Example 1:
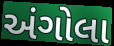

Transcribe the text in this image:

અંગોલા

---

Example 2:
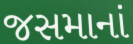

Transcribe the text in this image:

જસમાનાં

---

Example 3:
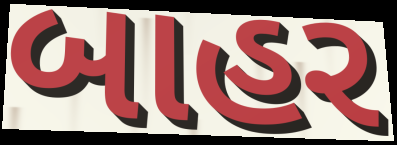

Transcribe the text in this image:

બાહર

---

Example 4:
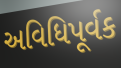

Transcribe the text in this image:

અવિધિપૂર્વક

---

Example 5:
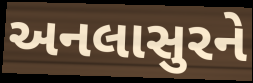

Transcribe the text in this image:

અનલાસુરને